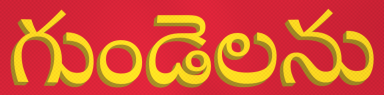
గుండెలను